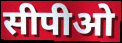
सीपीओ